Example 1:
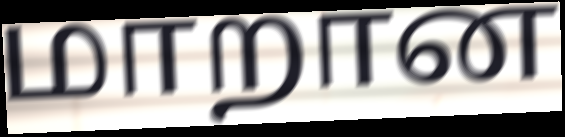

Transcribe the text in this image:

மாறான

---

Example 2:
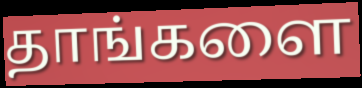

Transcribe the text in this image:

தாங்களை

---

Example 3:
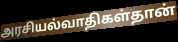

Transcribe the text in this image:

அரசியல்வாதிகள்தான்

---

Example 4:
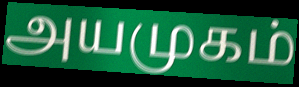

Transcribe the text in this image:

அயமுகம்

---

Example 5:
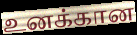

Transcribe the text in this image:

உனக்கான